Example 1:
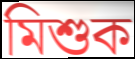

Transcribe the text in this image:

মিশুক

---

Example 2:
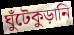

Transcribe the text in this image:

ঘুঁটেকুড়ানি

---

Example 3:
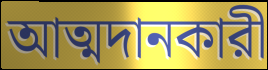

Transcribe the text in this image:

আত্মদানকারী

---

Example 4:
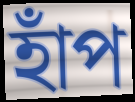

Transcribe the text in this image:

হাঁপ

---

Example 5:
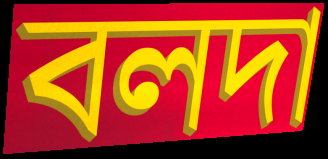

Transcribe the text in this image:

বলদা